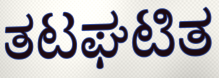
ತಟಘಟಿತ